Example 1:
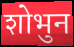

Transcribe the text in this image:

शोभुन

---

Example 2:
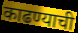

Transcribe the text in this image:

काढण्याची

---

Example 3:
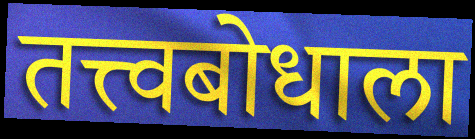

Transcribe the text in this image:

तत्त्वबोधाला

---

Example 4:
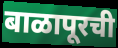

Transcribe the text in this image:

बाळापूरची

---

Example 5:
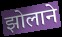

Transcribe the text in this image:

झोलाने